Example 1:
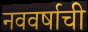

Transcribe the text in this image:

नववर्षाची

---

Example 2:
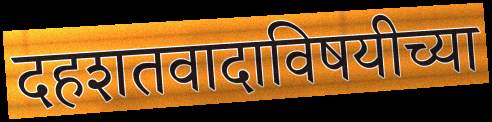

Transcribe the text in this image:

दहशतवादाविषयीच्या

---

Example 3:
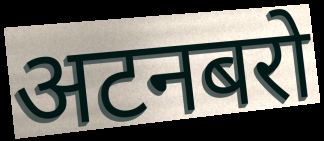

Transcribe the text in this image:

अटनबरो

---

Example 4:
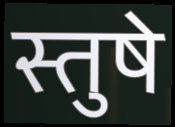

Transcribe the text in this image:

स्तुषे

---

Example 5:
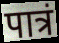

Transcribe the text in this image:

पात्रं